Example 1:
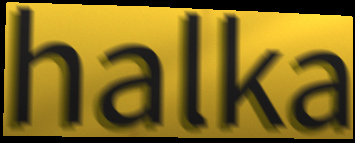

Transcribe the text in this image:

halka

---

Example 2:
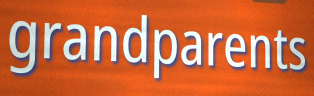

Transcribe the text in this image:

grandparents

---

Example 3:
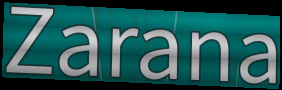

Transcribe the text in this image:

Zarana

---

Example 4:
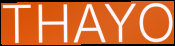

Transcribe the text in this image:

THAYO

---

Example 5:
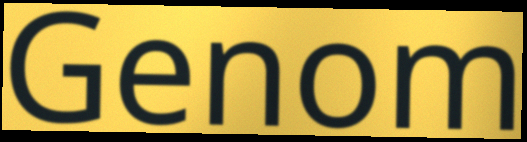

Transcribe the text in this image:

Genom